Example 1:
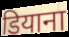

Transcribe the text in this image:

डियाना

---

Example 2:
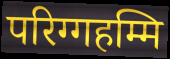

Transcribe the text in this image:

परिग्गहम्मि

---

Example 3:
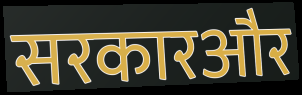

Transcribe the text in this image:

सरकारऔर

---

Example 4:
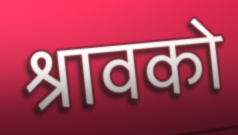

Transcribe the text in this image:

श्रावको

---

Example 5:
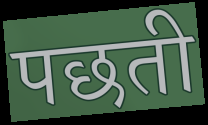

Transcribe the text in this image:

पछती